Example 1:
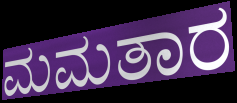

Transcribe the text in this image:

ಮಮತಾರ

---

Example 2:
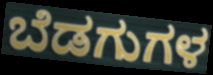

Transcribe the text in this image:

ಬೆಡಗುಗಳ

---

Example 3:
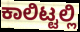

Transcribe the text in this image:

ಕಾಲಿಟ್ಟಲ್ಲಿ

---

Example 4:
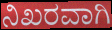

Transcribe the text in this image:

ನಿಖರವಾಗಿ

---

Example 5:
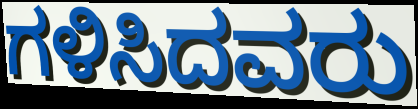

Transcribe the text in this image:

ಗಳಿಸಿದವರು